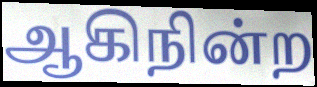
ஆகிநின்ற